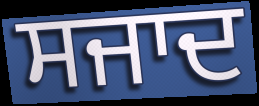
ਸਜਾਦ